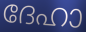
ദേഹാ